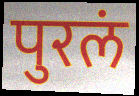
पुरलं